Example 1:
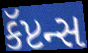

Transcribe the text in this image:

કૅપ્ટન્સ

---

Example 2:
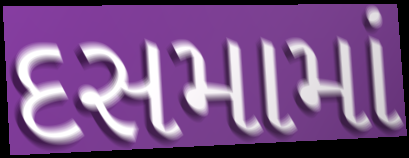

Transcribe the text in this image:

દસમામાં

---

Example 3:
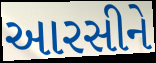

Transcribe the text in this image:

આરસીને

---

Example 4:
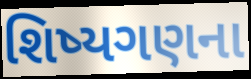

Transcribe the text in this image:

શિષ્યગણના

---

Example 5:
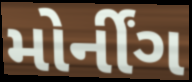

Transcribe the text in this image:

મોર્નીંગ